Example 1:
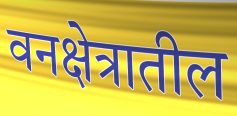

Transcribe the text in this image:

वनक्षेत्रातील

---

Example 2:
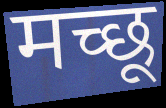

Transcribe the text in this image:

मच्छू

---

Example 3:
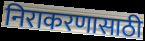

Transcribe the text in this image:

निराकरणासाठी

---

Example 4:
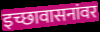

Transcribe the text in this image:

इच्छावासनांवर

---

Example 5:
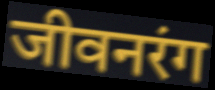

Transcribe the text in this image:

जीवनरंग